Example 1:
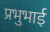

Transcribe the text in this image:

प्रभुभाई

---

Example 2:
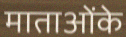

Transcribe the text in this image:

माताओंके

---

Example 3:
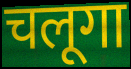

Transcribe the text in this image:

चलूगा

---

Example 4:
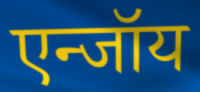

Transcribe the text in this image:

एन्जॉय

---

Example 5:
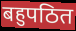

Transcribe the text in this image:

बहुपठित